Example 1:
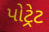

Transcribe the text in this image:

પોટ્રેટ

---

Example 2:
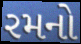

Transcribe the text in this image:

રમનો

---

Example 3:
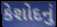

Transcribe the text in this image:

કેશોદનું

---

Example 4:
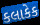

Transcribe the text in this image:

કલાકેક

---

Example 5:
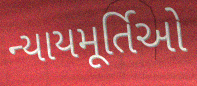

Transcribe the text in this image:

ન્યાયમૂર્તિઓ